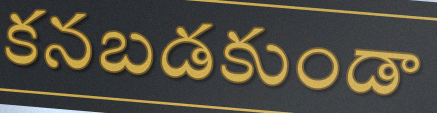
కనబడకుండా